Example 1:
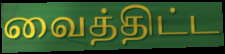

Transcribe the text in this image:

வைத்திட்ட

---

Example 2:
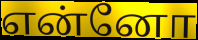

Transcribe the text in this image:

என்னோ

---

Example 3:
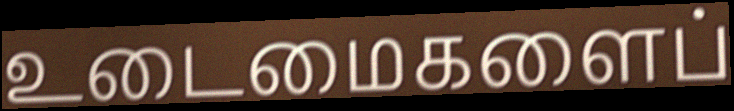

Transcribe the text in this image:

உடைமைகளைப்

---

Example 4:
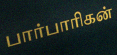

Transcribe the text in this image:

பார்பாரிகன்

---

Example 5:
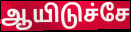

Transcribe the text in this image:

ஆயிடுச்சே